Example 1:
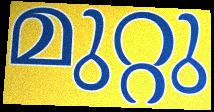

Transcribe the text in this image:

മുറ്റു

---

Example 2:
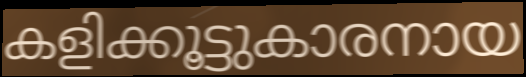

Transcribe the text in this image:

കളിക്കൂട്ടുകാരനായ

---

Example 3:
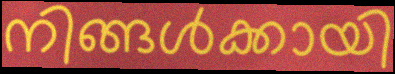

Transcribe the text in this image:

നിങ്ങൾക്കായി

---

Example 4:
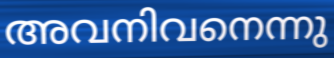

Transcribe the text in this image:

അവനിവനെന്നു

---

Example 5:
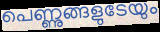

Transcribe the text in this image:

പെണ്ണുങ്ങളുടേയും